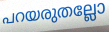
പറയരുതല്ലോ